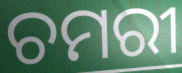
ଚମରୀ